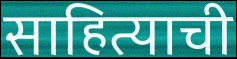
साहित्याची